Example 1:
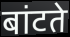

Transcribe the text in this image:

बांटते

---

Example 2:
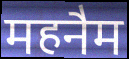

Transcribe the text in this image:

महनैम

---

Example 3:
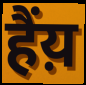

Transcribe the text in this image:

हैंय़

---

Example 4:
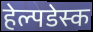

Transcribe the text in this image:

हेल्पडेस्क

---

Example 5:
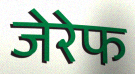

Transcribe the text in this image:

जेरेफ